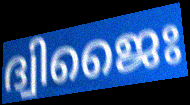
ദ്വിജൈഃ